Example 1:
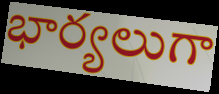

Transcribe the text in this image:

భార్యలుగా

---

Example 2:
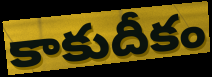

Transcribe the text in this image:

కాకుదీకం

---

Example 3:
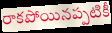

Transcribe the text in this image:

రాకపోయినప్పటికీ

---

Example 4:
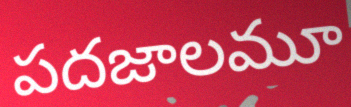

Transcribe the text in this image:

పదజాలమూ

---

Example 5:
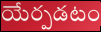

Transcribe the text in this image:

యేర్పడటం